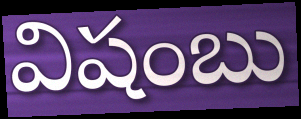
విషంబు